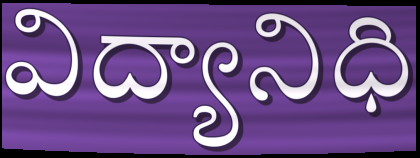
విద్యానిధి